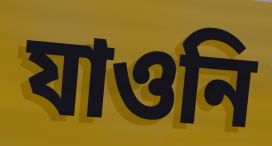
যাওনি